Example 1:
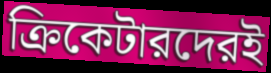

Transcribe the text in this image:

ক্রিকেটারদেরই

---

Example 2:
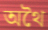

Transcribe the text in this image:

অথৈ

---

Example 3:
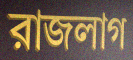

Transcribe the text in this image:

রাজলাগ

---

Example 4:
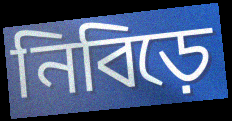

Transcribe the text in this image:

নিবিড়ে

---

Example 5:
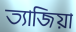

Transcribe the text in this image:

ত্যাজিয়া